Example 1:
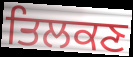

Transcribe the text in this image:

ਤਿਲਕਣ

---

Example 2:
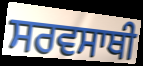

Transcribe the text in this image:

ਸਰਵਸਾਥੀ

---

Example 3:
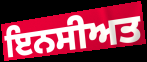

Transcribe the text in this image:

ਇਨਸੀਅਤ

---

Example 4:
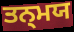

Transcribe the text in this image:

ਤਨ੍ਮਯ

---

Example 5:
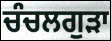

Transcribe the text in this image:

ਚੰਚਲਗੁੜਾ